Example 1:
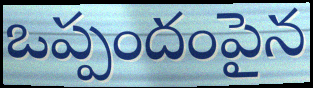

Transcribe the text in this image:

ఒప్పందంపైన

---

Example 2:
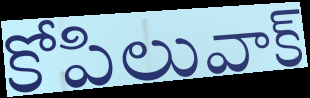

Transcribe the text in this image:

కోపిలువాక్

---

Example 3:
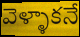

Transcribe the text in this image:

వెళ్ళాకనే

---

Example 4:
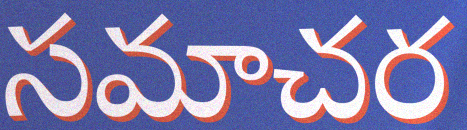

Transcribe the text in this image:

సమాచర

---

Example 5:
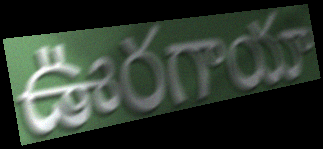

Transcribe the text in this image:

ఊరగాయా